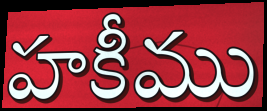
హకీము